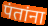
पंतांना